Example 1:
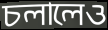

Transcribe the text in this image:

চলালেও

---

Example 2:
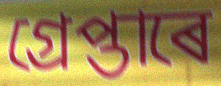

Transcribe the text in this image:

গ্ৰেপ্তাৰে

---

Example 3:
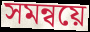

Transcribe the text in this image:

সমন্বয়ে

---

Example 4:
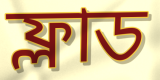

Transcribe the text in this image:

ফ্লাড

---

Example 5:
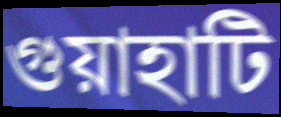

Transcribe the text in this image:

গুয়াহাটি